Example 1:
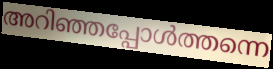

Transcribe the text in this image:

അറിഞ്ഞപ്പോൾത്തന്നെ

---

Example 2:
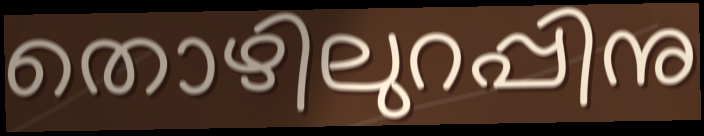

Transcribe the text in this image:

തൊഴിലുറപ്പിനു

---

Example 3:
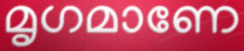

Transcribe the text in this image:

മൃഗമാണേ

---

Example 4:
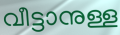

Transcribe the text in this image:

വീട്ടാനുള്ള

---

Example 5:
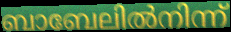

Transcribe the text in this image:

ബാബേലിൽനിന്ന്